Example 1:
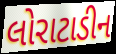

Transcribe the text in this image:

લોરાટાડીન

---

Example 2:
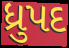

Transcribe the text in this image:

ધ્રુપદ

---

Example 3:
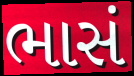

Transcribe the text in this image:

ભાસં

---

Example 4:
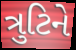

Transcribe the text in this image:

ત્રુટિને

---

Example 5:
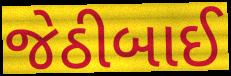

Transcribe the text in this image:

જેઠીબાઈ